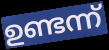
ഉണ്ടന്ന്